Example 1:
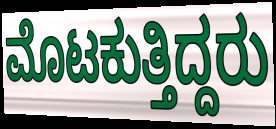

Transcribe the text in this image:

ಮೊಟಕುತ್ತಿದ್ದರು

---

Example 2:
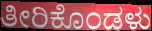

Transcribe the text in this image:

ತೀರಿಕೊಂಡಳು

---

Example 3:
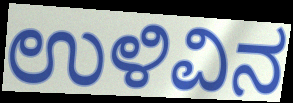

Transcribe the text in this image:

ಉಳಿವಿನ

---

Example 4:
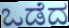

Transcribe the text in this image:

ಒಡೆದ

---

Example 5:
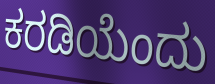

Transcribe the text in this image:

ಕರಡಿಯೆಂದು